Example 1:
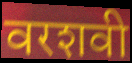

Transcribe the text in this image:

वरशवी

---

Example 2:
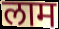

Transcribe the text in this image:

लाम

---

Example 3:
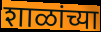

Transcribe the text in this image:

शाळांच्या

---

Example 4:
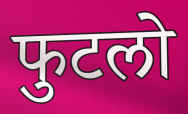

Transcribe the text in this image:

फुटलो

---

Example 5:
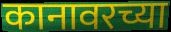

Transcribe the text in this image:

कानावरच्या